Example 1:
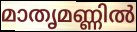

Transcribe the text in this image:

മാതൃമണ്ണിൽ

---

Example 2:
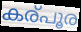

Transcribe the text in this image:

കര്പൂര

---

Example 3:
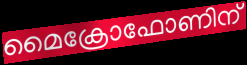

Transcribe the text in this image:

മൈക്രോഫോണിന്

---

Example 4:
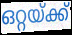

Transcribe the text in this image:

ഒറ്റയ്ക്ക്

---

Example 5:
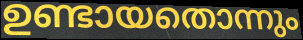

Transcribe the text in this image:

ഉണ്ടായതൊന്നും